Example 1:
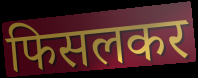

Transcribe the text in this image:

फिसलकर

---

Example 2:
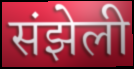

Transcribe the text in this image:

संझेली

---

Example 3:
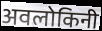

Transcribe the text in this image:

अवलोकिनी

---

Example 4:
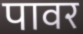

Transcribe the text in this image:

पावर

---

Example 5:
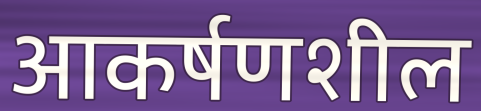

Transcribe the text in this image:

आकर्षणशील